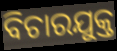
ବିଚାରଯୁକ୍ତ